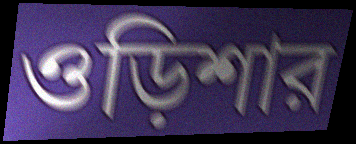
ওড়িশার